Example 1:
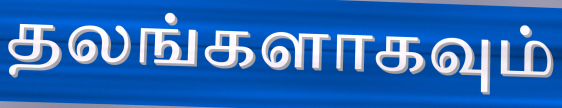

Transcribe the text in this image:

தலங்களாகவும்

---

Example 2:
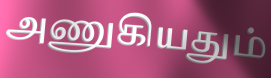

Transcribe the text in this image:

அணுகியதும்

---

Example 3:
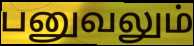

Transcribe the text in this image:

பனுவலும்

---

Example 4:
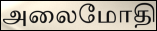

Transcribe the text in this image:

அலைமோதி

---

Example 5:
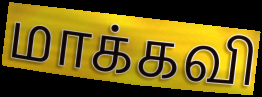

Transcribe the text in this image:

மாக்கவி